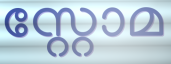
സ്റ്റോമ